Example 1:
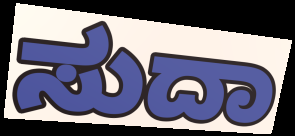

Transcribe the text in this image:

ಸುದಾ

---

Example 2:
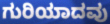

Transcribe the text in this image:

ಗುರಿಯಾದವು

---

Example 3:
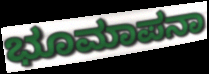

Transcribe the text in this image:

ಭೂಮಾಪನಾ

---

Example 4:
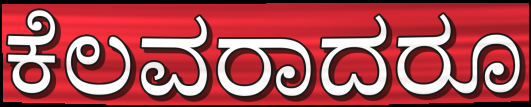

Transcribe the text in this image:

ಕೆಲವರಾದರೂ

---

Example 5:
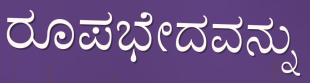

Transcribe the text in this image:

ರೂಪಭೇದವನ್ನು